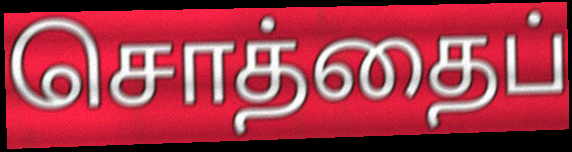
சொத்தைப்